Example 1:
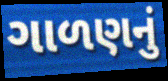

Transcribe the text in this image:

ગાળણનું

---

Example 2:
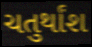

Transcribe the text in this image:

ચતુર્થાંશ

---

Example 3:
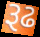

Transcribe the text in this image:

રૂઢ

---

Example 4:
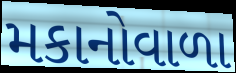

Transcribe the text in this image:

મકાનોવાળા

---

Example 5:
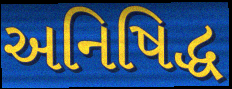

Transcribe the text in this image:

અનિષિદ્ધ